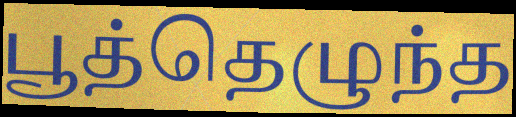
பூத்தெழுந்த